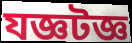
যজ্ঞটজ্ঞ